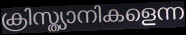
ക്രിസ്ത്യാനികളെന്ന